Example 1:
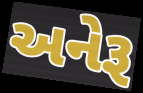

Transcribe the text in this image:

અનેરૂ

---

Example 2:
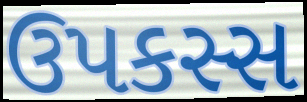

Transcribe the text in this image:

ઉપકસ્સ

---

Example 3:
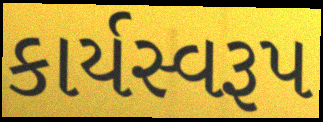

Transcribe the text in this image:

કાર્યસ્વરૂપ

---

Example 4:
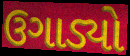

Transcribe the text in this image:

ઉગાડ્યો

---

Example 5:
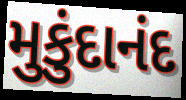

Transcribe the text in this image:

મુકુંદાનંદ